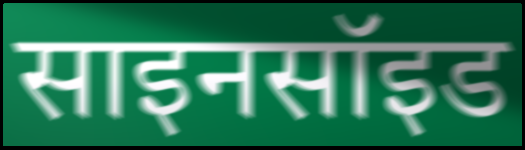
साइनसॉइड